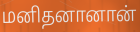
மனிதனானான்